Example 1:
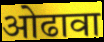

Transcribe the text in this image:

ओढावा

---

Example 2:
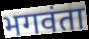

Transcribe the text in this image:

भगवंता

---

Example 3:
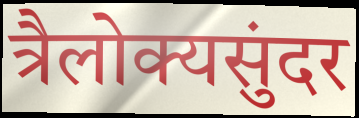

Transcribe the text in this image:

त्रैलोक्यसुंदर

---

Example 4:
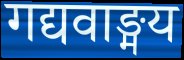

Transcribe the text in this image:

गद्यवाङ्मय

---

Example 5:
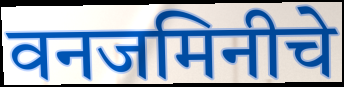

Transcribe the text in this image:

वनजमिनीचे